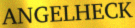
ANGELHECK